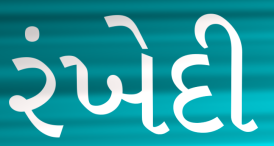
રંખેદી